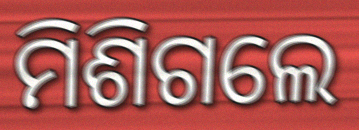
ମିଶିଗଲେ